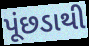
પૂંછડાથી